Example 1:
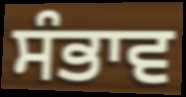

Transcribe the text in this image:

ਸੰਭਾਵ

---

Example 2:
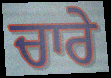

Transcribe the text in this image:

ਚਾਰੇ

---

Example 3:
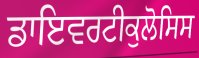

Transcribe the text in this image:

ਡਾਇਵਰਟੀਕੁਲੋਸਿਸ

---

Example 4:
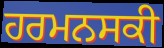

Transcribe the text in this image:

ਹਰਮਨਸਕੀ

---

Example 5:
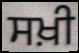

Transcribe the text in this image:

ਸਖ਼ੀ